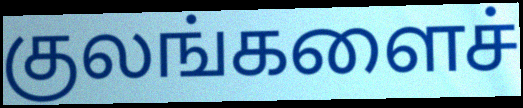
குலங்களைச்